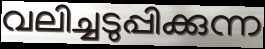
വലിച്ചടുപ്പിക്കുന്ന